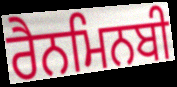
ਰੈਨਮਿਨਬੀ